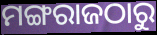
ମଙ୍ଗରାଜଠାରୁ